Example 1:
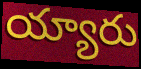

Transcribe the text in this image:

య్యారు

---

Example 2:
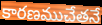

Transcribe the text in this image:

కారణముచేతనే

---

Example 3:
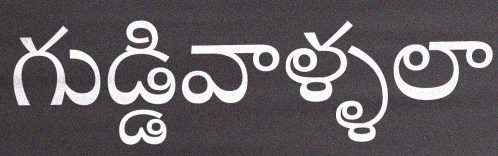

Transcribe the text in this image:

గుడ్డివాళ్ళలా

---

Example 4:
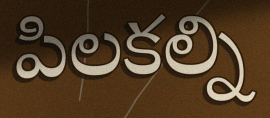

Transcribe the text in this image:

పిలకల్ని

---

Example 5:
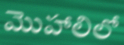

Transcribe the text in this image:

మొహాలిలో